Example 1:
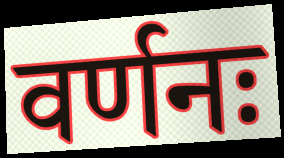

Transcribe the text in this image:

वर्णनः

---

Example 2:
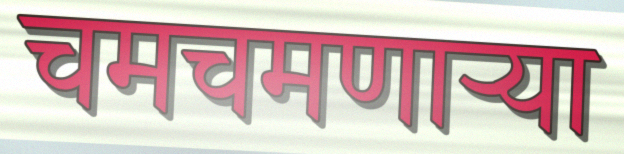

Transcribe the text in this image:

चमचमणाऱ्या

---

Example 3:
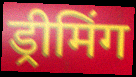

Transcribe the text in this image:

ड्रीमिंग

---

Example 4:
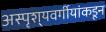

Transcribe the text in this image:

अस्पृश्यवर्गीयांकडून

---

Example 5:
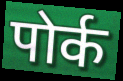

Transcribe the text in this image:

पोर्क